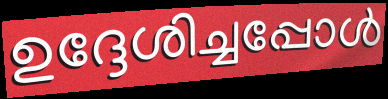
ഉദ്ദേശിച്ചപ്പോൾ